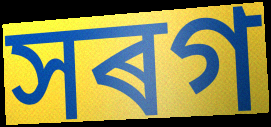
সৰগ